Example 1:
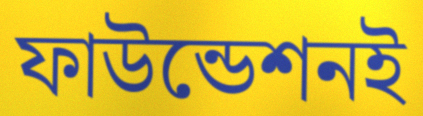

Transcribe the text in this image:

ফাউন্ডেশনই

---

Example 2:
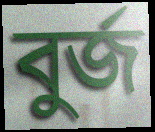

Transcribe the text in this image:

বুর্জ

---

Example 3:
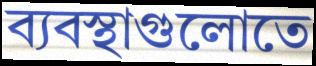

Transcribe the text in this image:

ব্যবস্থাগুলোতে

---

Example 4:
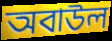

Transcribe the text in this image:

অবাউল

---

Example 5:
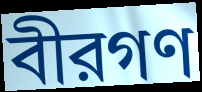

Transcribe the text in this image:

বীরগণ